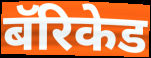
बॅरिकेड